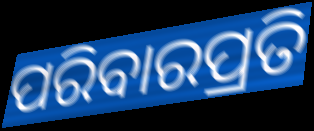
ପରିବାରପ୍ରତି